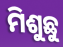
ମିଶୁଛୁ